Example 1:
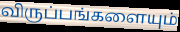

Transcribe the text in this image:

விருப்பங்களையும்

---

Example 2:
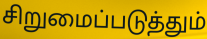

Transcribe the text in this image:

சிறுமைப்படுத்தும்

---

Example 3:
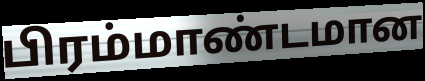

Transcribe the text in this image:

பிரம்மாண்டமான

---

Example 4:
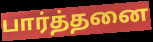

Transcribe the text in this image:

பார்த்தனை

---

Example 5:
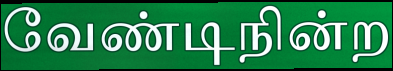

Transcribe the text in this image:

வேண்டிநின்ற